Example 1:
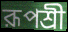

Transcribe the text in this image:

রূপশ্রী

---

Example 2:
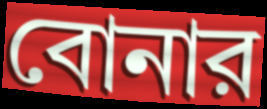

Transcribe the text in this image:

বোনার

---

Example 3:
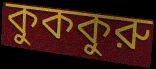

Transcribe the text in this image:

কুককুরু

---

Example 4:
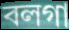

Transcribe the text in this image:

বলগা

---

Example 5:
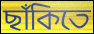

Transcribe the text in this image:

ছাঁকিতে